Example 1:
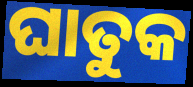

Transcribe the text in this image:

ଘାତୁକ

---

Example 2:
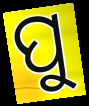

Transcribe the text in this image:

ପୁ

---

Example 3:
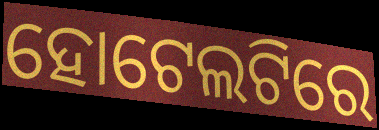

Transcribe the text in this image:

ହୋଟେଲଟିରେ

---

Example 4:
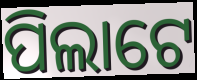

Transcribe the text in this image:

ପିଲାଟେ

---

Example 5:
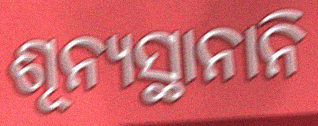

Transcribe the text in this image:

ଶୂନ୍ୟସ୍ଥାନାନି